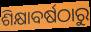
ଶିକ୍ଷାବର୍ଷଠାରୁ